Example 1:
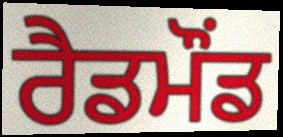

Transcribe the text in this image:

ਰੈਡਮੌਂਡ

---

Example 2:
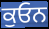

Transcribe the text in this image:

ਕੁਓਨ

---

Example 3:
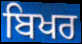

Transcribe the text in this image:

ਬਿਖਰ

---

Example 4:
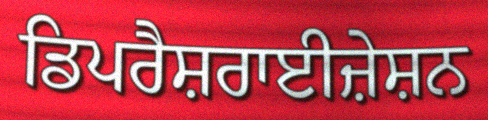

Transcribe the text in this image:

ਡਿਪਰੈਸ਼ਰਾਈਜ਼ੇਸ਼ਨ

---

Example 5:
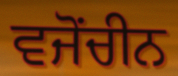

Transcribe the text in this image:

ਵਜੋਂਚੀਨ